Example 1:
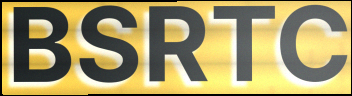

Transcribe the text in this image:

BSRTC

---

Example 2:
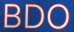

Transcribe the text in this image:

BDO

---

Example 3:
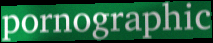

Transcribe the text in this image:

pornographic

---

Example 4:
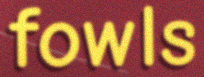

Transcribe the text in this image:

fowls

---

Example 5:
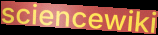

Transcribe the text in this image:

sciencewiki